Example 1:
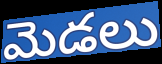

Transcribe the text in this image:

మెడలు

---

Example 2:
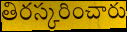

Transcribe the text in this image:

తిరస్కరించారు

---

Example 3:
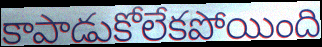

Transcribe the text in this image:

కాపాడుకోలేకపోయింది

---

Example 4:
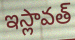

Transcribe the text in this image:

ఇస్లావత్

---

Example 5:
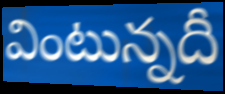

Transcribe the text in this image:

వింటున్నదీ